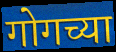
गोगच्या